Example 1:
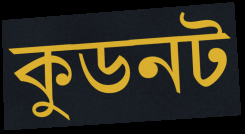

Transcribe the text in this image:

কুডনট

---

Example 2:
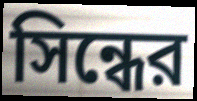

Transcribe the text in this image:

সিন্ধের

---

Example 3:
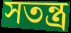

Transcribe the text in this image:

সতন্ত্র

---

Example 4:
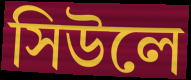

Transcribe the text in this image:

সিউলে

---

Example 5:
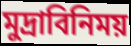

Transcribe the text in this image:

মুদ্রাবিনিময়